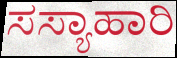
ಸಸ್ಯಾಹಾರಿ